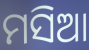
ମସିଆ